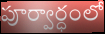
పూర్వార్ధంలో